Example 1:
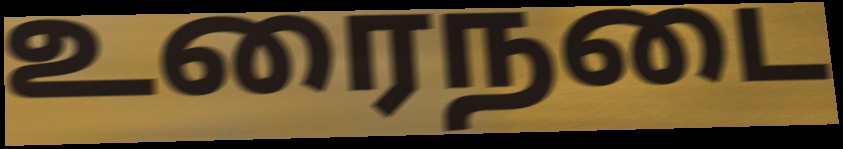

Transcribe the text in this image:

உரைநடை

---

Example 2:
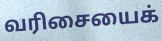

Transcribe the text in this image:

வரிசையைக்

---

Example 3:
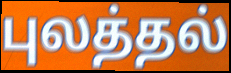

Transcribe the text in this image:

புலத்தல்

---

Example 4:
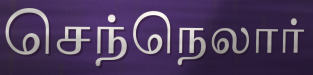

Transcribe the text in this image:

செந்நெலார்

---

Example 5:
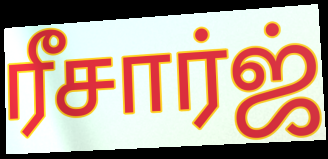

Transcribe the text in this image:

ரீசார்ஜ்